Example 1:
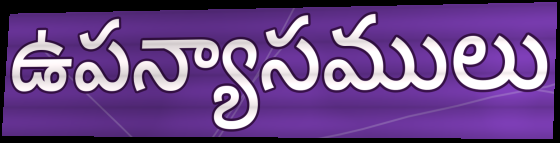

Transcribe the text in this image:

ఉపన్యాసములు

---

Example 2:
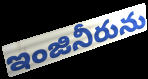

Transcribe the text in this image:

ఇంజినీరును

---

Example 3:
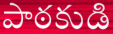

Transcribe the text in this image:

పాఠకుడి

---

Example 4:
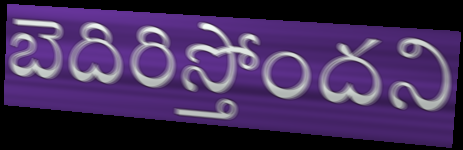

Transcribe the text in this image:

బెదిరిస్తోందని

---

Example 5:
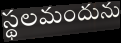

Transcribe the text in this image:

స్థలమందును